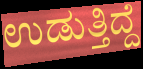
ಉಡುತ್ತಿದ್ದೆ